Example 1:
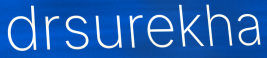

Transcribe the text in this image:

drsurekha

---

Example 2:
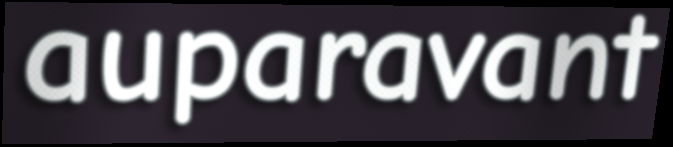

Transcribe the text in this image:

auparavant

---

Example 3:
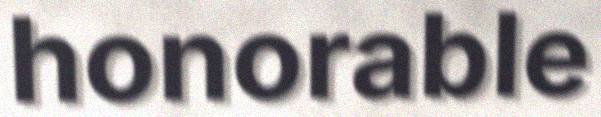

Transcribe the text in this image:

honorable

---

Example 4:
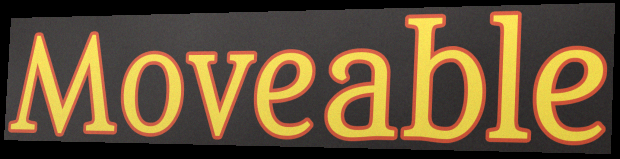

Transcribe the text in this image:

Moveable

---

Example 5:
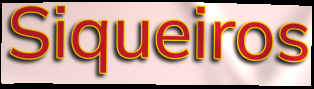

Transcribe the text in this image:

Siqueiros